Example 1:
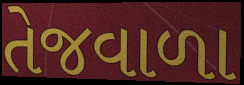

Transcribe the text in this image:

તેજવાળા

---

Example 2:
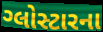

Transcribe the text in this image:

ગ્લોસ્ટારના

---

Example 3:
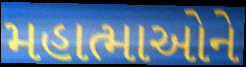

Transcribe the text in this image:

મહાત્માઓને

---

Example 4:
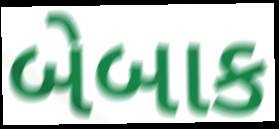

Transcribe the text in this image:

બેબાક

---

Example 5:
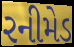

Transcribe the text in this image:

રનીમેડ